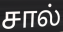
சால்